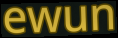
ewun